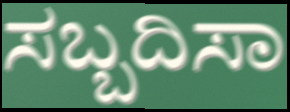
ಸಬ್ಬದಿಸಾ